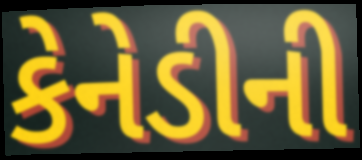
કેનેડીની